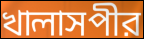
খালাসপীর